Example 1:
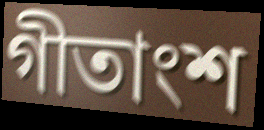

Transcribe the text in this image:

গীতাংশ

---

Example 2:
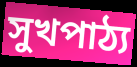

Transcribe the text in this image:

সুখপাঠ্য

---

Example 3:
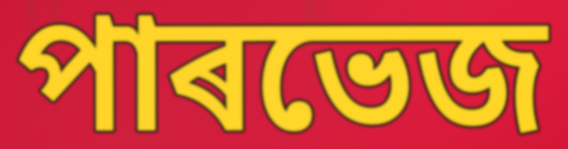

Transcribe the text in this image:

পাৰভেজ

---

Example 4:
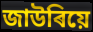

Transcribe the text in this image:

জাউৰিয়ে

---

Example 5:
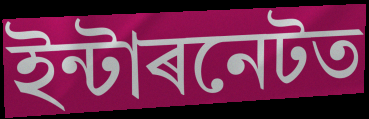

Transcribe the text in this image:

ইন্টাৰনেটত